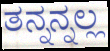
ತನ್ನನ್ನಲ್ಲ